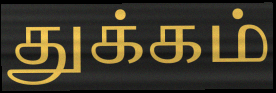
துக்கம்